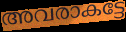
അവരാകട്ടേ